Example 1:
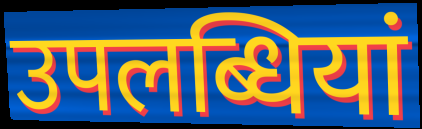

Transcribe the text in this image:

उपलब्धियां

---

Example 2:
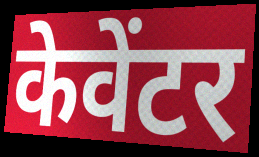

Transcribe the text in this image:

केवेंटर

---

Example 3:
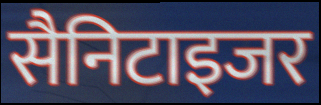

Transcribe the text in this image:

सैनिटाइजर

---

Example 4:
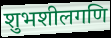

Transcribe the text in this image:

शुभशीलगणि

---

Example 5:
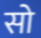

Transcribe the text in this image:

सो